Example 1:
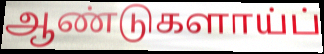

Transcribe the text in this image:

ஆண்டுகளாய்ப்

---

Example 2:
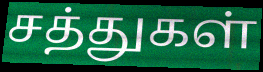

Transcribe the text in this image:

சத்துகள்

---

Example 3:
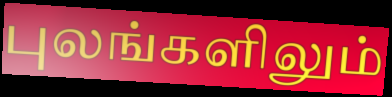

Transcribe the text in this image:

புலங்களிலும்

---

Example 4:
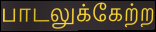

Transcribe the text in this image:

பாடலுக்கேற்ற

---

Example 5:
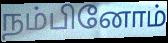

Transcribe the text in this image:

நம்பினோம்